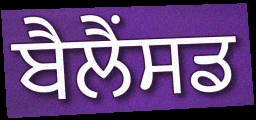
ਬੈਲੈਂਸਡ